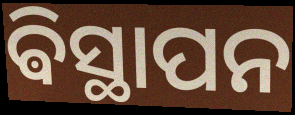
ଵିସ୍ଥାପନ